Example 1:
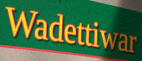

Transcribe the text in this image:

Wadettiwar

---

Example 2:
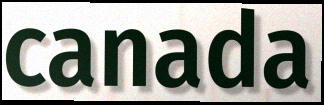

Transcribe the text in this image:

canada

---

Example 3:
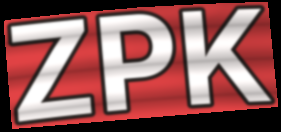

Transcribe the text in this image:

ZPK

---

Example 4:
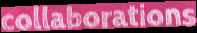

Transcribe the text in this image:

collaborations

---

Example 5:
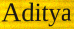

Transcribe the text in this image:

Aditya